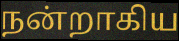
நன்றாகிய